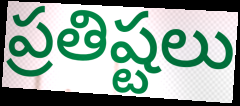
ప్రతిష్టలు